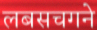
लबसचगने